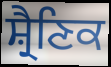
ਸ਼੍ਰੈਣਿਕ